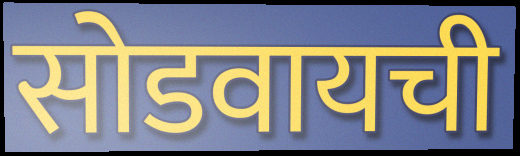
सोडवायची